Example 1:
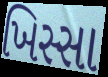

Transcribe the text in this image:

ખિસ્સા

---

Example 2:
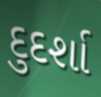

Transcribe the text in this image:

દુદર્શા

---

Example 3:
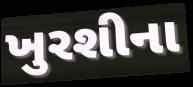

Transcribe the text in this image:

ખુરશીના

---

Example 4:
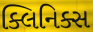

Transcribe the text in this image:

ક્લિનિક્સ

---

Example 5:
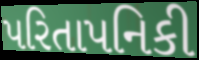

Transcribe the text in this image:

પરિતાપનિકી